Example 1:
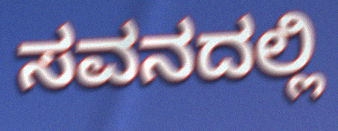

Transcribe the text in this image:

ಸವನದಲ್ಲಿ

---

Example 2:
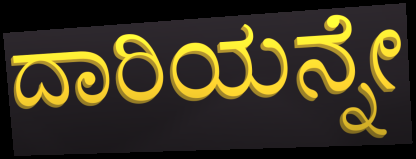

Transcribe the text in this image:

ದಾರಿಯನ್ನೇ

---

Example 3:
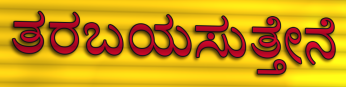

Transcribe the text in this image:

ತರಬಯಸುತ್ತೇನೆ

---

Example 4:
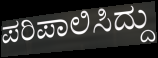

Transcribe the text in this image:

ಪರಿಪಾಲಿಸಿದ್ದು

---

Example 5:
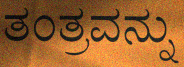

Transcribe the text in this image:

ತಂತ್ರವನ್ನು